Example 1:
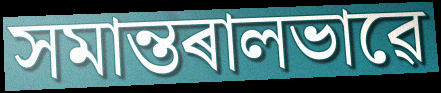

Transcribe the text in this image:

সমান্তৰালভাৱে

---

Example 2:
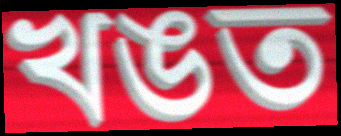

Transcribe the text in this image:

খঙত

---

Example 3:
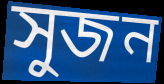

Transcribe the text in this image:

সুজন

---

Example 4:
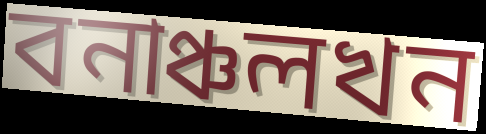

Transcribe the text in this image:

বনাঞ্চলখন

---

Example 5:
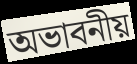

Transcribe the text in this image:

অভাবনীয়